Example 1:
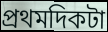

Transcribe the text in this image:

প্রথমদিকটা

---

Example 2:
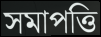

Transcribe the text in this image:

সমাপত্তি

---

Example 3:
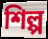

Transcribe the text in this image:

শিল্প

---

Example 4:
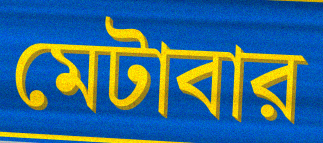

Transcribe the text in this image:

মেটাবার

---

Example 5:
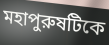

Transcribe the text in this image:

মহাপুরুষটিকে